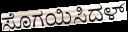
ಸೊಗಯಿಸಿದಳ್